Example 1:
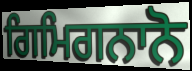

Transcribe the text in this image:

ਗਿਮਿਗਨਾਨੋ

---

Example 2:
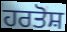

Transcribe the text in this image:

ਹਰਤੋਸ਼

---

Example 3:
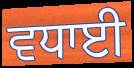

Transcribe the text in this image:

ਵਧਾਈ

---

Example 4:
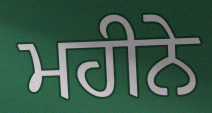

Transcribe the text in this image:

ਮਹੀਨੇ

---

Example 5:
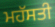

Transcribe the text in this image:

ਮਹੱਸਤੀ